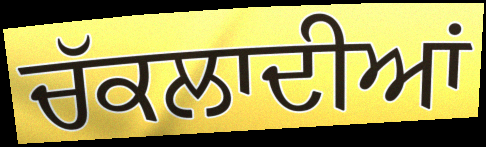
ਚੱਕਲਾਦੀਆਂ